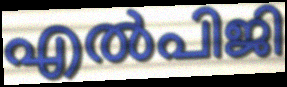
എൽപിജി